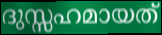
ദുസ്സഹമായത്